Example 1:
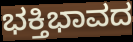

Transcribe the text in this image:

ಭಕ್ತಿಭಾವದ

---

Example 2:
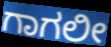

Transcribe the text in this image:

ಗಾಗಲೀ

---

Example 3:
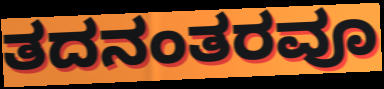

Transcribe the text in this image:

ತದನಂತರವೂ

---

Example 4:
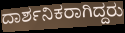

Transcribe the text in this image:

ದಾರ್ಶನಿಕರಾಗಿದ್ದರು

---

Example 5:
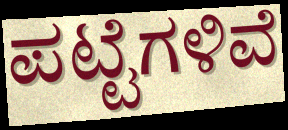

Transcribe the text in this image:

ಪಟ್ಟೆಗಳಿವೆ